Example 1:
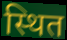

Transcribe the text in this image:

स्थित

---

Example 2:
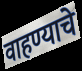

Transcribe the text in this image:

वाहण्याचे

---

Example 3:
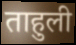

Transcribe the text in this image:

ताहुली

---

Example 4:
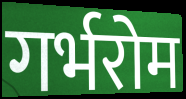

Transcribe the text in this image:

गर्भरोम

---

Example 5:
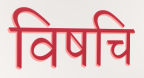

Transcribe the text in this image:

विषचि